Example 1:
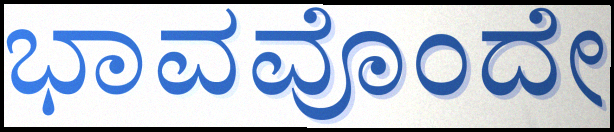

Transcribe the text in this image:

ಭಾವವೊಂದೇ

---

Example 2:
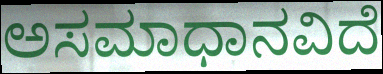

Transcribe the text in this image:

ಅಸಮಾಧಾನವಿದೆ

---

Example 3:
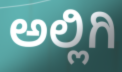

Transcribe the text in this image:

ಅಲ್ಲಿಗಿ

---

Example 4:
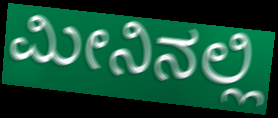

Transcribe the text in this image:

ಮೀನಿನಲ್ಲಿ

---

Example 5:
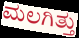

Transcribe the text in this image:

ಮಲಗಿತ್ತು